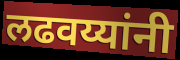
लढवय्यांनी